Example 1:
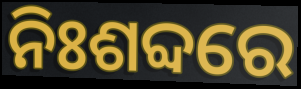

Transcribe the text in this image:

ନିଃଶବ୍ଦରେ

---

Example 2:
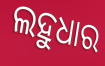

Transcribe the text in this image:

ଲହୁଧାର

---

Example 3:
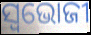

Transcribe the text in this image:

ସ୍ବଭୋଜୀ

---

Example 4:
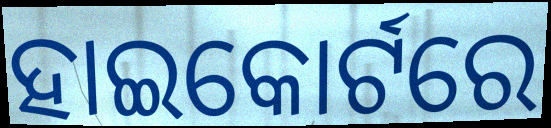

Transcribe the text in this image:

ହାଇକୋର୍ଟରେ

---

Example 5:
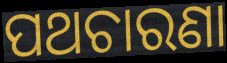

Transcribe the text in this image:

ପଥଚାରଣା